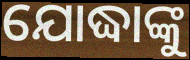
ଯୋଦ୍ଧାଙ୍କୁ